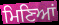
ਮਿਣਿਆਂ